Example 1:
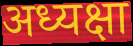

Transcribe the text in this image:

अध्यक्षा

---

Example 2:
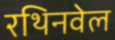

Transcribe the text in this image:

रथिनवेल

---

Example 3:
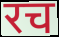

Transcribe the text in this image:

रच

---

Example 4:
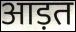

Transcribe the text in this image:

आड़त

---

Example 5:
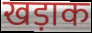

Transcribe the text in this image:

खड़ाक